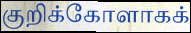
குறிக்கோளாகக்